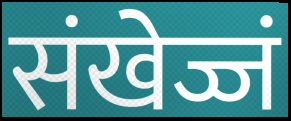
संखेज्जं